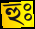
হুঃ